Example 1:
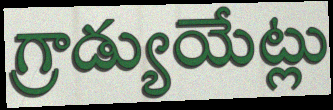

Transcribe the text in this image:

గ్రాడ్యుయేట్లు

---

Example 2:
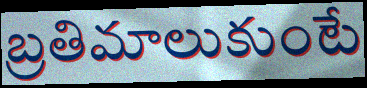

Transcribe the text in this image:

బ్రతిమాలుకుంటే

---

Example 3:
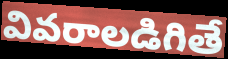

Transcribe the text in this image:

వివరాలడిగితే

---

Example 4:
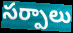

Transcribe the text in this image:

సర్పాలు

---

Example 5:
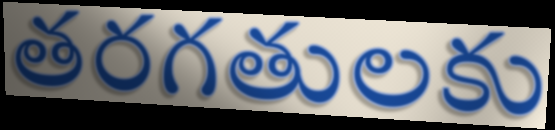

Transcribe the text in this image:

తరగతులకు